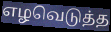
எழவெடுத்த